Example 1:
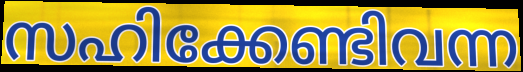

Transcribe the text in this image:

സഹിക്കേണ്ടിവന്ന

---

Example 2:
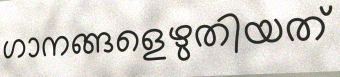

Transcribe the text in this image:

ഗാനങ്ങളെഴുതിയത്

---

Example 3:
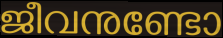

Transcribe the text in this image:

ജീവനുണ്ടോ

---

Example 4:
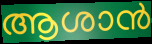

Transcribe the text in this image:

ആശാൻ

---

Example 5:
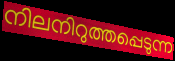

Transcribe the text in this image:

നിലനിറുത്തപ്പെടുന്ന